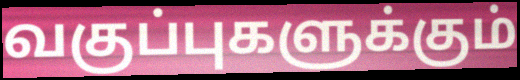
வகுப்புகளுக்கும்